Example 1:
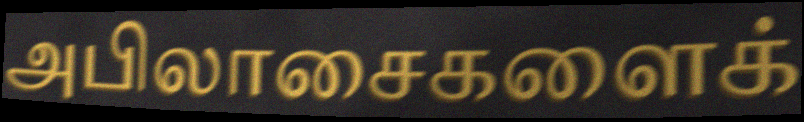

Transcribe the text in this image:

அபிலாசைகளைக்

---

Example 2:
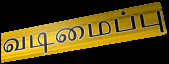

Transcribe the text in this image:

வடிமைப்பு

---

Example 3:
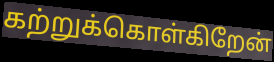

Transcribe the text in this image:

கற்றுக்கொள்கிறேன்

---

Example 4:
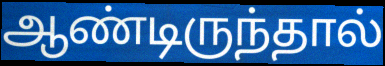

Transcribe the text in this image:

ஆண்டிருந்தால்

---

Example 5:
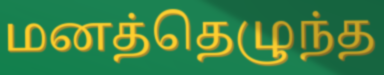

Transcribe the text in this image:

மனத்தெழுந்த